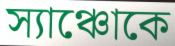
স্যাঞ্চোকে